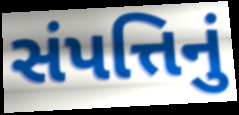
સંપત્તિનું